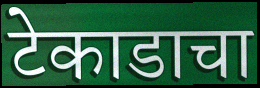
टेकाडाचा